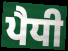
ਪੈਧੀ